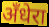
अँधेरा